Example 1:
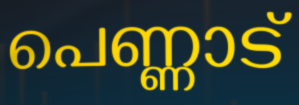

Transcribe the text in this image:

പെണ്ണാട്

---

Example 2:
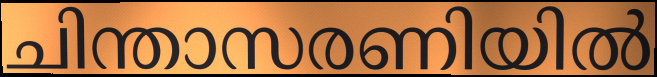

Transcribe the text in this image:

ചിന്താസരണിയിൽ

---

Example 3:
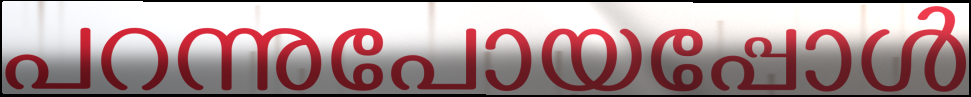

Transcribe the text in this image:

പറന്നുപോയപ്പോൾ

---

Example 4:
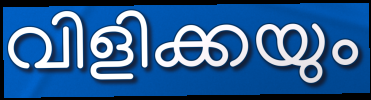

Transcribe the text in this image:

വിളിക്കയും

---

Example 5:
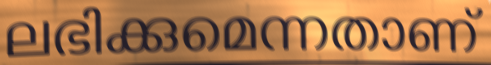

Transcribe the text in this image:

ലഭിക്കുമെന്നതാണ്